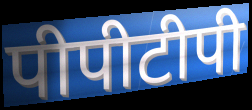
पीपीटीपी